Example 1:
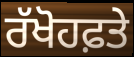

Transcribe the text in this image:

ਰੱਖੋਹਫ਼ਤੇ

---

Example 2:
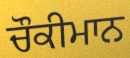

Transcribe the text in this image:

ਚੌਕੀਮਾਨ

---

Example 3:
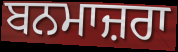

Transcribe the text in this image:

ਬਨਮਾਜ਼ਰਾ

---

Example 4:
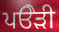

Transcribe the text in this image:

ਪੳੇੜੀ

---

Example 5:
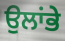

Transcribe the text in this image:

ਉਲਾਂਭੇ